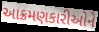
આક્રમણકારીઓને